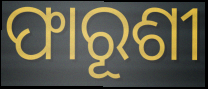
ଫାରୂଶୀ